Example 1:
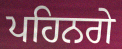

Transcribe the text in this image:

ਪਹਿਨਗੇ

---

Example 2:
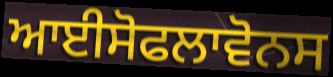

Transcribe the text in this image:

ਆਈਸੋਫਲਾਵੋਨਸ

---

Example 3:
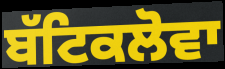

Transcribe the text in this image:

ਬੱਟਿਕਲੋਵਾ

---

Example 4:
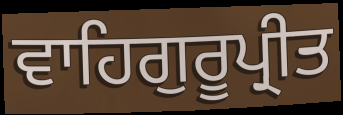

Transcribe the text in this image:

ਵਾਹਿਗੁਰੂਪ੍ਰੀਤ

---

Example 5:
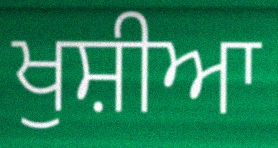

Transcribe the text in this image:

ਖੁਸ਼ੀਆ